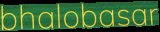
bhalobasar